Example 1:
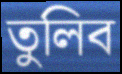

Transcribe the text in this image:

তুলিব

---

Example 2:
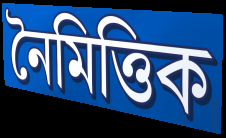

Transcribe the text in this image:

নৈমিত্তিক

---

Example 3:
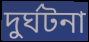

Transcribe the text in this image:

দুৰ্ঘটনা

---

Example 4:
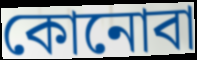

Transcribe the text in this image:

কোনোবা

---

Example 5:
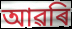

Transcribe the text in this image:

আৱৰি